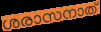
ശരാസനാത്